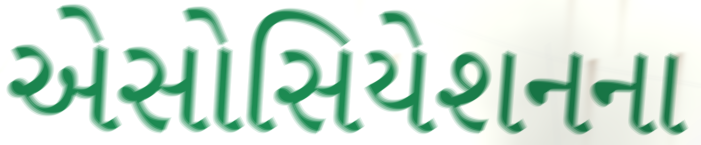
એસોસિયેશનના